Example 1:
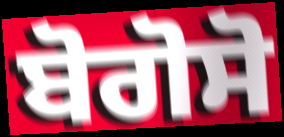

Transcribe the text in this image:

ਬੋਗੋਸੋ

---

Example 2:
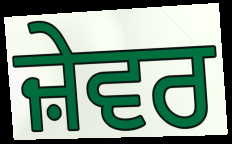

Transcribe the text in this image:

ਜ਼ੇਵਰ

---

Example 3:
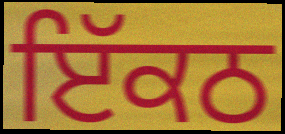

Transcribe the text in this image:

ਇੱਕਠ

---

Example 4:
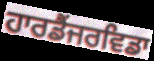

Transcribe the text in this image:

ਹਾਰਡੈਂਜਰਵਿਡਾ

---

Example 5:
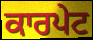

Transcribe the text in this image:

ਕਾਰਪੇਟ